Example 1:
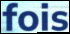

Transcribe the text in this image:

fois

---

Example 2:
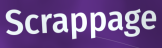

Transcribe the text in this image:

Scrappage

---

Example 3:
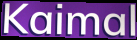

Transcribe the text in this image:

Kaimal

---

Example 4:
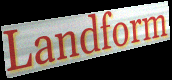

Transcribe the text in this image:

Landform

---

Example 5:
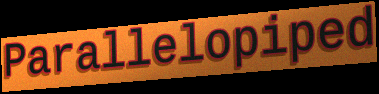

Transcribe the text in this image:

Parallelopiped